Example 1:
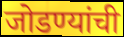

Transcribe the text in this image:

जोडण्यांची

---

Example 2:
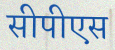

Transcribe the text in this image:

सीपीएस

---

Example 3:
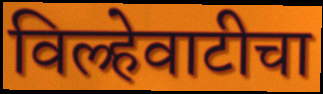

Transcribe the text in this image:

विल्हेवाटीचा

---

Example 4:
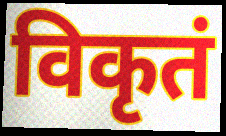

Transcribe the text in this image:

विकृतं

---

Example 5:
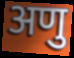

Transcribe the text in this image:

अणु